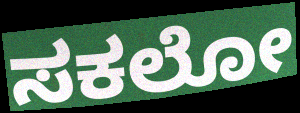
ಸಕಲೋ